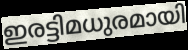
ഇരട്ടിമധുരമായി